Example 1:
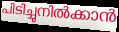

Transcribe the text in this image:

പിടിച്ചുനിൽക്കാൻ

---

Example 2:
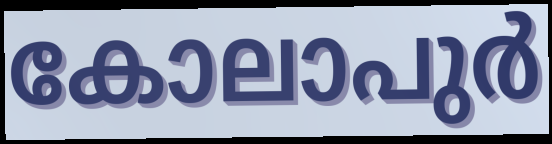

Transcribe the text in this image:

കോലാപുർ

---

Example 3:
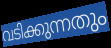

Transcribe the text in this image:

വടിക്കുന്നതും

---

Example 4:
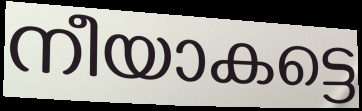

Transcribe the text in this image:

നീയാകട്ടെ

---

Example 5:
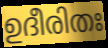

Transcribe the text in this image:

ഉദീരിതഃ